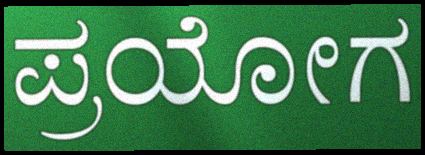
ಪ್ರಯೋಗ